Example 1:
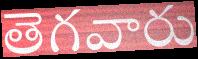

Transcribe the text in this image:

తెగవారు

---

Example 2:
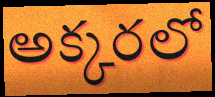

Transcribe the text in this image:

అక్కరలో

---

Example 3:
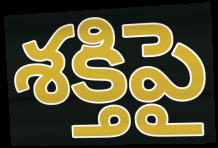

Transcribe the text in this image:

శక్తిపై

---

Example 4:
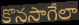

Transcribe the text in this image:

కొనసాగేలా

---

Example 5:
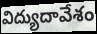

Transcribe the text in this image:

విద్యుదావేశం